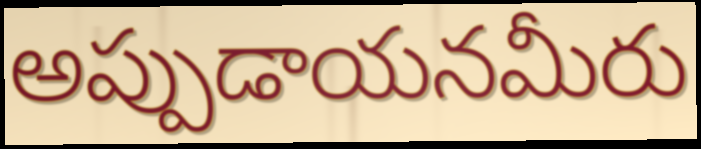
అప్పుడాయనమీరు